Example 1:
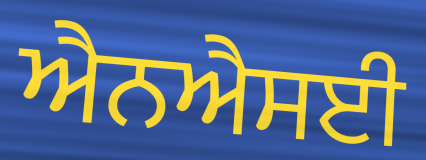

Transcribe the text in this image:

ਐਨਐਸਈ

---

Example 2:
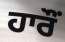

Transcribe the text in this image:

ਹਾਰੌਂ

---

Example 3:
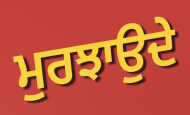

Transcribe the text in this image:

ਮੁਰਝਾਉਦੇ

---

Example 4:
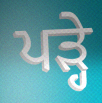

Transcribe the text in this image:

ਪਡ਼੍ਹੇ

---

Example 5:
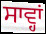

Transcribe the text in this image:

ਸਾਵ੍ਹਾਂ